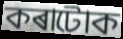
কৰাটোক